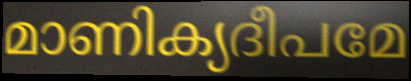
മാണിക്യദീപമേ